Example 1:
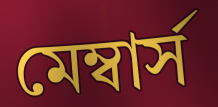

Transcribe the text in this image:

মেম্বার্স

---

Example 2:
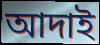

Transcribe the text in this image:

আদাই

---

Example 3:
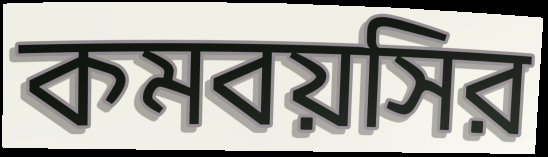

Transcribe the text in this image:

কমবয়সির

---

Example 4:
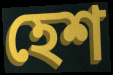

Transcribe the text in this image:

হেশ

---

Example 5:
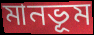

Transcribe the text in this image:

মানভূম